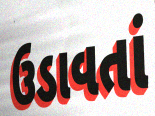
ઉડાવતાં